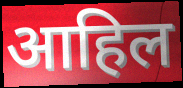
आहिल